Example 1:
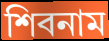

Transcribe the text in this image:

শিবনাম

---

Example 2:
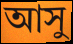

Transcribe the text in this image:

আসু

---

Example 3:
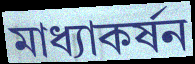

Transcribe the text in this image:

মাধ্যাকর্ষন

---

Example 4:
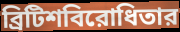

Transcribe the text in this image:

ব্রিটিশবিরোধিতার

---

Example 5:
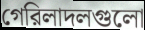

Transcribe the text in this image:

গেরিলাদলগুলো